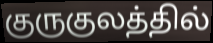
குருகுலத்தில்